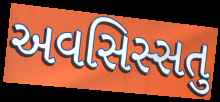
અવસિસ્સતુ